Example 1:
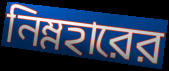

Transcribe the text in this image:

নিম্নহারের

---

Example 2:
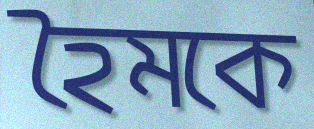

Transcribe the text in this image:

হৈমকে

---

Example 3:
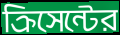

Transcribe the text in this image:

ক্রিসেন্টের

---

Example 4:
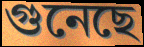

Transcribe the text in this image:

গুনেছে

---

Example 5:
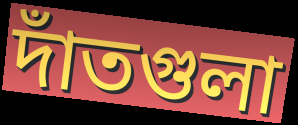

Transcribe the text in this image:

দাঁতগুলা